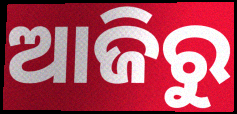
ଆଜିରୁ